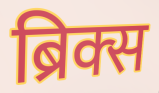
ब्रिक्‍स